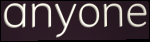
anyone